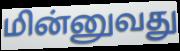
மின்னுவது